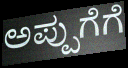
ಅಪ್ಪುಗೆಗೆ